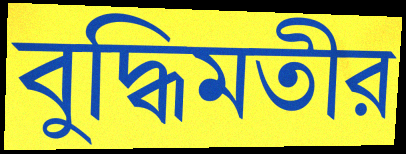
বুদ্ধিমতীর